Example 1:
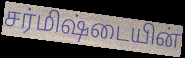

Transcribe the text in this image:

சர்மிஷ்டையின்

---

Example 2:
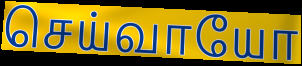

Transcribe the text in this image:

செய்வாயோ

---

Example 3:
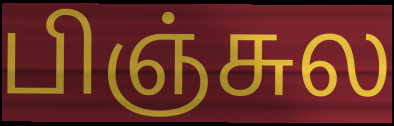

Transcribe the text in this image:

பிஞ்சுல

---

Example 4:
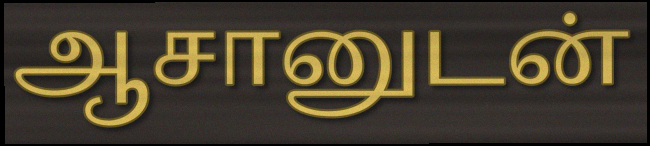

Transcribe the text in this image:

ஆசானுடன்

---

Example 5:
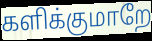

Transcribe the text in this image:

களிக்குமாறே